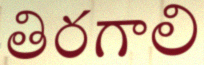
తిరగాలి